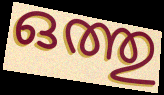
ഒത്തു